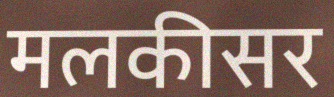
मलकीसर